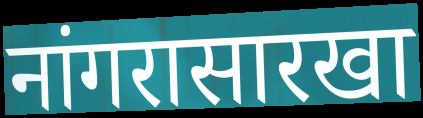
नांगरासारखा